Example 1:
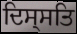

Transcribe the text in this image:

ਦਿਸ੍ਸਤਿ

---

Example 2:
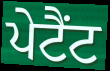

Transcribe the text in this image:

ਪੇਟੈਂਟ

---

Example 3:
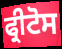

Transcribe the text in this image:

ਫ੍ਰੀਟੋਸ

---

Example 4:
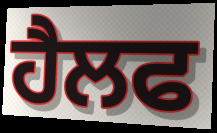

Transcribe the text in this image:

ਹੈਲਫ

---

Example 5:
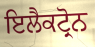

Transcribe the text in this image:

ਇਲੈਕਟ੍ਰੋਨ